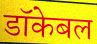
डॉकेबल